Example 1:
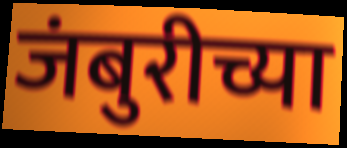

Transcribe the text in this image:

जंबुरीच्या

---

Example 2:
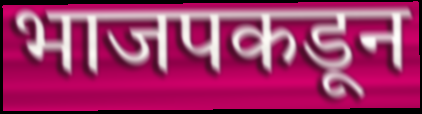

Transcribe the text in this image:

भाजपकडून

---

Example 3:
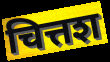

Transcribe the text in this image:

चित्तश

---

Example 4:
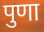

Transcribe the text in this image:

पुणा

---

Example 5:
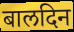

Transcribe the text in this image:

बालदिन